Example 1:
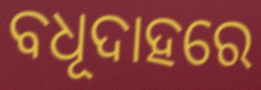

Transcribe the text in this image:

ବଧୂଦାହରେ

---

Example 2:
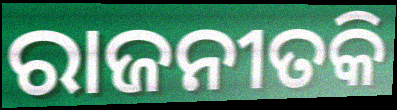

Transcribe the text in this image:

ରାଜନୀତକି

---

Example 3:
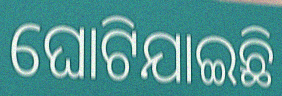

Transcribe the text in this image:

ଘୋଟିଯାଇଛି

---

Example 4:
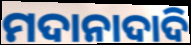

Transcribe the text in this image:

ମଦାନାଦାଦି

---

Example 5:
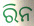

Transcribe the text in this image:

ରିନ